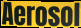
Aerosol